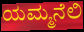
ಯಮ್ಮನೆಲಿ